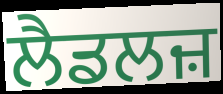
ਲੈਡਲਜ਼